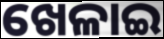
ଖେଳାଇ